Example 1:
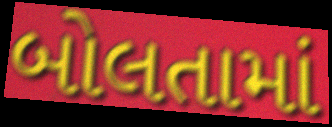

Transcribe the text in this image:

બોલતામાં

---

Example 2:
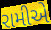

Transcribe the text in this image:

રામીએ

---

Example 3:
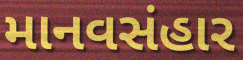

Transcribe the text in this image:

માનવસંહાર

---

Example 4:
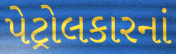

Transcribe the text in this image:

પેટ્રોલકારનાં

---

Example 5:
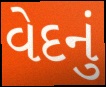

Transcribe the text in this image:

વેદનું